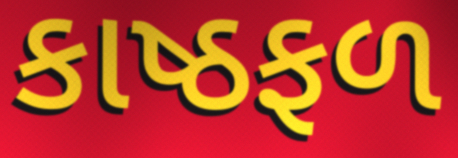
કાષ્ઠફળ